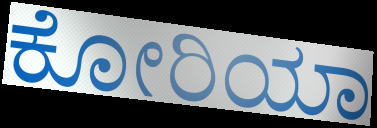
ಕೋರಿಯಾ